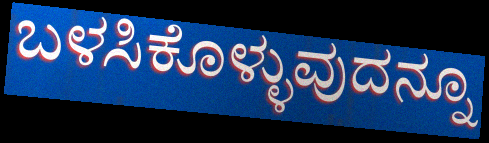
ಬಳಸಿಕೊಳ್ಳುವುದನ್ನೂ